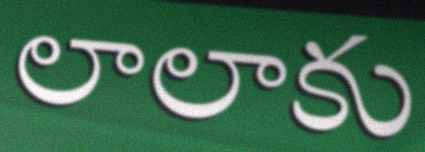
లాలాకు